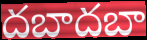
దబాదబా